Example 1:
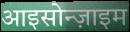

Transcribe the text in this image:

आइसोन्ज़ाइम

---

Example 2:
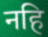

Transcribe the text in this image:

नहि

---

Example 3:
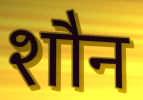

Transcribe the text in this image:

शौन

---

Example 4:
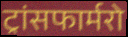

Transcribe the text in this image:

ट्रांसफार्मरो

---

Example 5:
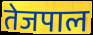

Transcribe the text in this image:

तेजपाल